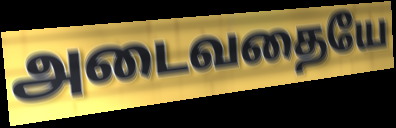
அடைவதையே